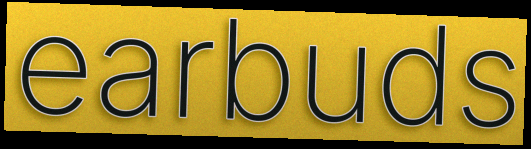
earbuds